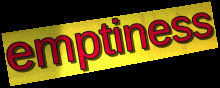
emptiness